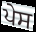
ਪੇਸ